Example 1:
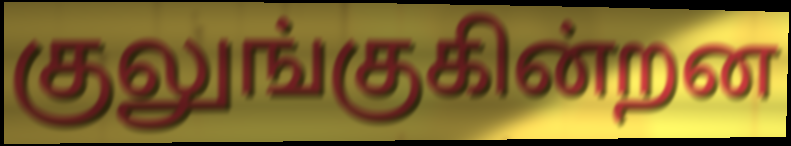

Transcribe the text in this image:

குலுங்குகின்றன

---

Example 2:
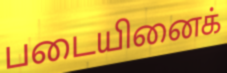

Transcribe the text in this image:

படையினைக்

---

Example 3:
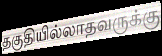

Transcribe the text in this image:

தகுதியில்லாதவருக்கு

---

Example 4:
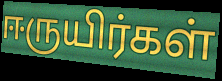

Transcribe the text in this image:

ஈருயிர்கள்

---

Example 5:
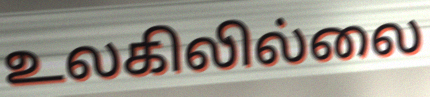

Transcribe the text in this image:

உலகிலில்லை